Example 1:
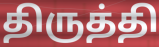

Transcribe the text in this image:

திருத்தி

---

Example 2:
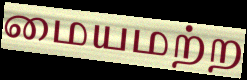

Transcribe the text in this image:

மையமற்ற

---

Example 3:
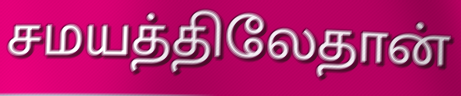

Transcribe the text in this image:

சமயத்திலேதான்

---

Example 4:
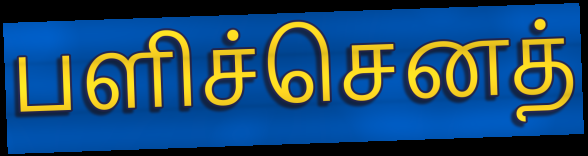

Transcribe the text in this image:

பளிச்செனத்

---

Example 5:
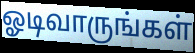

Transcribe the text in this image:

ஓடிவாருங்கள்